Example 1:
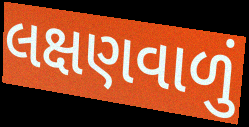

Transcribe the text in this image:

લક્ષણવાળું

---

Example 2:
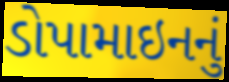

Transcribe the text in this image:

ડોપામાઇનનું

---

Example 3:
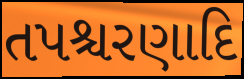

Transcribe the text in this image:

તપશ્ચરણાદિ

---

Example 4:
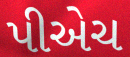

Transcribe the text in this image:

પીએચ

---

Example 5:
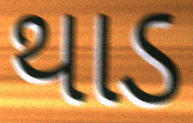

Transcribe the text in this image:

થાડ